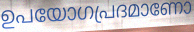
ഉപയോഗപ്രദമാണോ